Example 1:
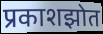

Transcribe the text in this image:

प्रकाशझोत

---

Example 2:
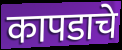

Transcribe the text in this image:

कापडाचे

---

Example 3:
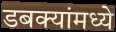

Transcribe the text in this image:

डबक्यांमध्ये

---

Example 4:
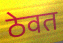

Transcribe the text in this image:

ठेवत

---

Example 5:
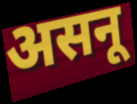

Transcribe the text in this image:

असनू